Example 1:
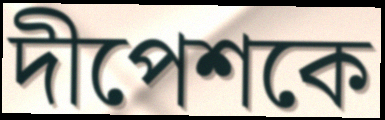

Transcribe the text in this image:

দীপেশকে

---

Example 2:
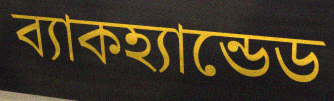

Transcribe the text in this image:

ব্যাকহ্যান্ডেড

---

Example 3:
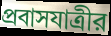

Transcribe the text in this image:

প্রবাসযাত্রীর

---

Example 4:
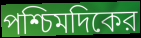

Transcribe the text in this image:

পশ্চিমদিকের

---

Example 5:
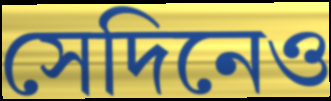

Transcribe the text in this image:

সেদিনেও